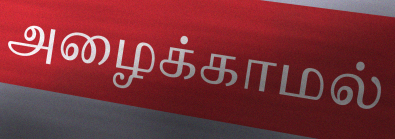
அழைக்காமல்